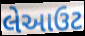
લેઆઉટ